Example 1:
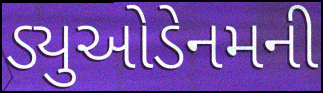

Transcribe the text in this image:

ડ્યુઓડેનમની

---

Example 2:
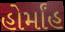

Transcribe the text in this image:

હોર્માંહ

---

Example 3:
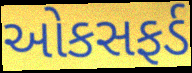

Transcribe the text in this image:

ઓકસફર્ડ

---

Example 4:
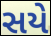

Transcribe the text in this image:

સયે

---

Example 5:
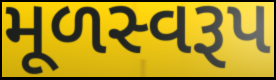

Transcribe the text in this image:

મૂળસ્વરૂપ